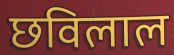
छविलाल